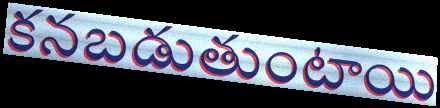
కనబడుతుంటాయి